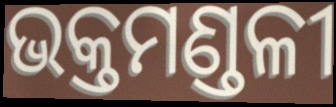
ଭକ୍ତମଣ୍ଡଳୀ